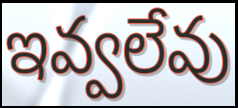
ఇవ్వలేవు